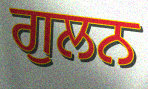
ਗੁਲਨ